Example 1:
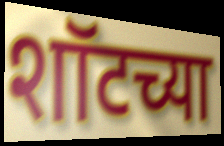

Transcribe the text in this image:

शॉटच्या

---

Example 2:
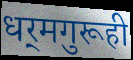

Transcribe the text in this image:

धर्मगुरूही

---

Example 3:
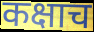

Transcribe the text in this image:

कक्षाच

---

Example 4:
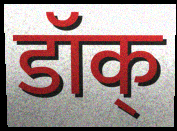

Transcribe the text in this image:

डॉक्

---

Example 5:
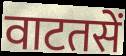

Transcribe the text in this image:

वाटतसें